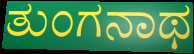
ತುಂಗನಾಥ